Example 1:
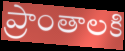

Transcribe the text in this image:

ప్రాంతాలకి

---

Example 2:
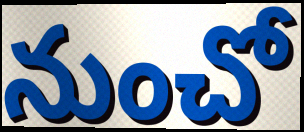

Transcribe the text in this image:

నుంచో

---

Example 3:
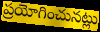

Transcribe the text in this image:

ప్రయోగించునట్లు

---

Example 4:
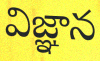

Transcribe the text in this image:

విజ్ఞాన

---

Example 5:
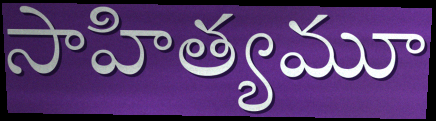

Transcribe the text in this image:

సాహిత్యమూ